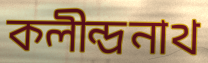
কলীন্দ্রনাথ